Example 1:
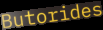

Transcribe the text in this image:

Butorides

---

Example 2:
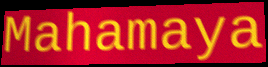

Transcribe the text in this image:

Mahamaya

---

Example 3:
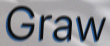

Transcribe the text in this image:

Graw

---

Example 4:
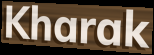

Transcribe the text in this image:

Kharak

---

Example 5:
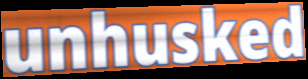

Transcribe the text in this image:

unhusked